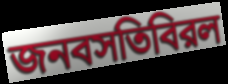
জনবসতিবিরল